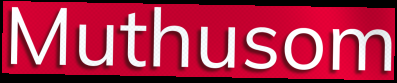
Muthusom